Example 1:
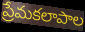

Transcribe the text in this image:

ప్రేమకలాపాల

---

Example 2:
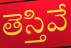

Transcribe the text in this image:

తెస్తివే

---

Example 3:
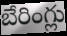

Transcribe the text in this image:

బేరింగ్లు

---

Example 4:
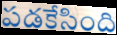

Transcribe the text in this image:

పడకేసింది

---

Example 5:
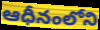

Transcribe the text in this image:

ఆధీనంలోని